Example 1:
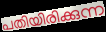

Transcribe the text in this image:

പതിയിരിക്കുന്ന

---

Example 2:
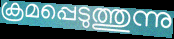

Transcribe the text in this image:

ക്രമപ്പെടുത്തുന്നു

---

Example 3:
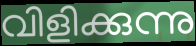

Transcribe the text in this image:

വിളിക്കുന്നു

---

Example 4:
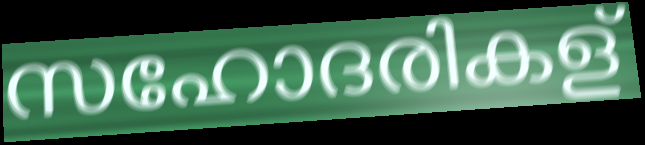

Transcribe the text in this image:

സഹോദരികള്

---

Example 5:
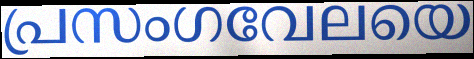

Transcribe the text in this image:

പ്രസംഗവേലയെ